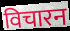
विचारन